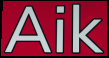
Aik